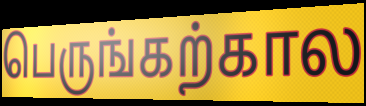
பெருங்கற்கால